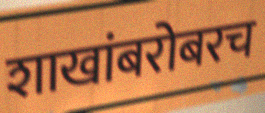
शाखांबरोबरच